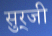
सुर्जी